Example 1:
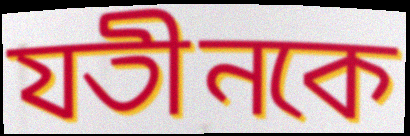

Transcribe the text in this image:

যতীনকে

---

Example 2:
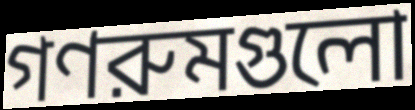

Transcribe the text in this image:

গণরুমগুলো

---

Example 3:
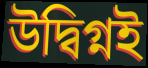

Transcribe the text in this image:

উদ্বিগ্নই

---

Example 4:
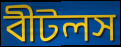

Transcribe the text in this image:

বীটলস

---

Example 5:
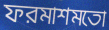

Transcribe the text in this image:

ফরমাশমতো